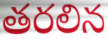
తరలిన